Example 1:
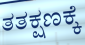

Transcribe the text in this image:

ತತಕ್ಷಣಕ್ಕೆ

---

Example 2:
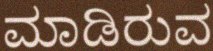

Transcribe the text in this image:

ಮಾಡಿರುವ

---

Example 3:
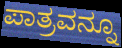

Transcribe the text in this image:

ಪಾತ್ರವನ್ನೂ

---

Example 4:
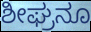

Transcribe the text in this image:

ಶೀಘ್ರನೂ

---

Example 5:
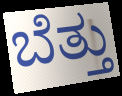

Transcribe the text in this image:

ಬೆತ್ತು